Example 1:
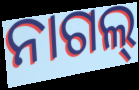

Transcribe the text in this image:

ନାଗଲ୍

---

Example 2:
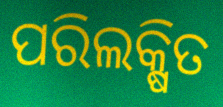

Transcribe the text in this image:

ପରିଲକ୍ଷିତ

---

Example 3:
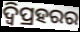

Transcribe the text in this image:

ଦ୍ବିପ୍ରହରର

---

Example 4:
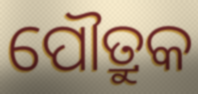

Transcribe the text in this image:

ପୌତ୍ରୁକ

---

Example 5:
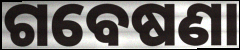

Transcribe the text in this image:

ଗବେଷଣା